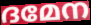
ദമേന